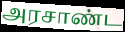
அரசாண்ட